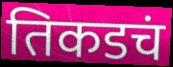
तिकडचं